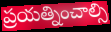
ప్రయత్నించాల్సి